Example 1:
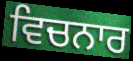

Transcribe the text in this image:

ਵਿਚਨਾਰ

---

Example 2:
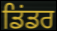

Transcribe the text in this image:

ਡਿਂਡਰ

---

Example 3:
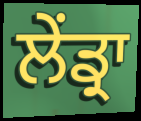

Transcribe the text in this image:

ਲੇਂਡ੍ਰਾ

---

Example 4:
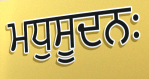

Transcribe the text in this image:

ਮਧੁਸੂਦਨਃ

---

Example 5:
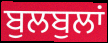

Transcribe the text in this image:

ਬੁਲਬੁਲਾਂ